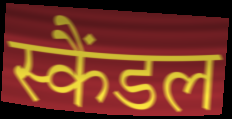
स्कैंडल